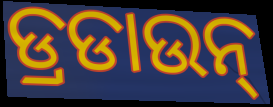
ଡ୍ରଡାଉନ୍